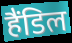
हैंडिल